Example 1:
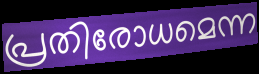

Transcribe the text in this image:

പ്രതിരോധമെന്ന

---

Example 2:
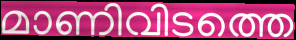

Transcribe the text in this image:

മാണിവിടത്തെ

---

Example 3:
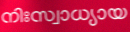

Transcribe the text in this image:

നിഃസ്വാധ്യായ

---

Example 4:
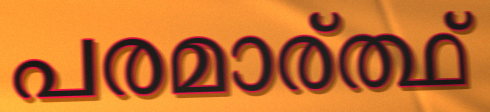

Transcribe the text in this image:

പരമാര്ത്ഥ്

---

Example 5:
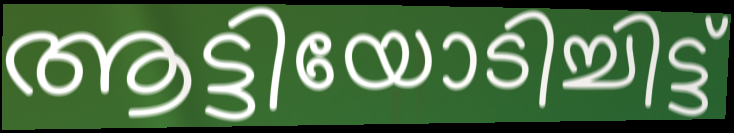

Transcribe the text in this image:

ആട്ടിയോടിച്ചിട്ട്